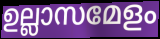
ഉല്ലാസമേളം